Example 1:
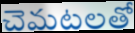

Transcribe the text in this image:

చెమటలతో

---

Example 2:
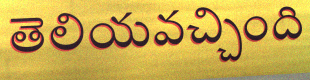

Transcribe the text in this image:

తెలియవచ్చింది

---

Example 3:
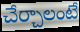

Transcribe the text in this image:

చేర్చాలంటే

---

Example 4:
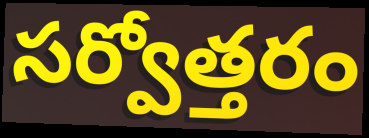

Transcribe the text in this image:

సర్వోత్తరం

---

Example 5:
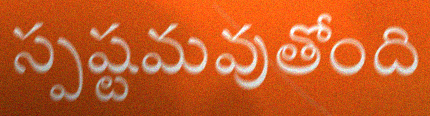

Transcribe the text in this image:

స్పష్టమవుతోంది